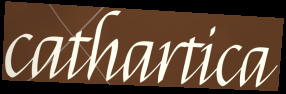
cathartica